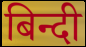
बिन्दी